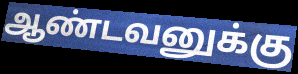
ஆண்டவனுக்கு